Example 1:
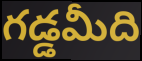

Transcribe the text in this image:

గడ్డమీది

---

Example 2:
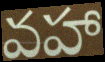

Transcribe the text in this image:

వహా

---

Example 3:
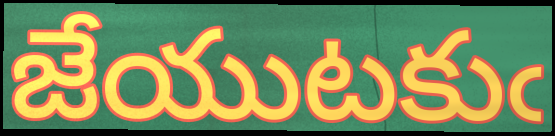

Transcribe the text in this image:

జేయుటకుఁ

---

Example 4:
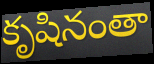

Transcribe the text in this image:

కృషినంతా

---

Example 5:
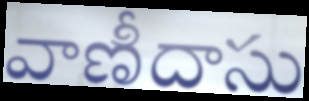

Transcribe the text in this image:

వాణీదాసు